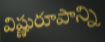
విష్ణురూపాన్ని